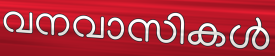
വനവാസികൾ